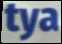
tya